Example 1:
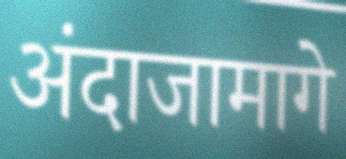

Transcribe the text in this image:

अंदाजामागे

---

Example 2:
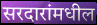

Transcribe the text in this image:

सरदारांमधील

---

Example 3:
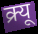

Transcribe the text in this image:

क्र्यू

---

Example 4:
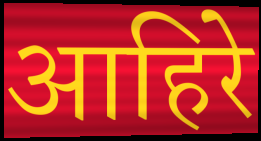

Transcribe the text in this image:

आहिरे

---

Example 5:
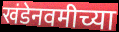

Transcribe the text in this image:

खंडेनवमीच्या